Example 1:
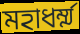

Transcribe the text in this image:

মহাধর্ম্ম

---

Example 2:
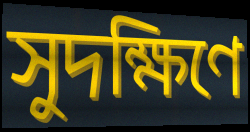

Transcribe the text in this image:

সুদক্ষিণে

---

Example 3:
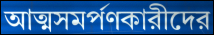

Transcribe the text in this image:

আত্মসমর্পণকারীদের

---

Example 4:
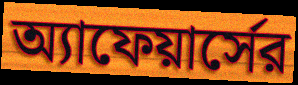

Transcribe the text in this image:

অ্যাফেয়ার্সের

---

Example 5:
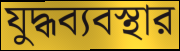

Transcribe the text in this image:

যুদ্ধব্যবস্থার